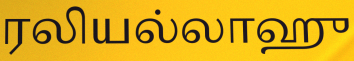
ரலியல்லாஹு